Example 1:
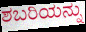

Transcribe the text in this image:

ಶಬರಿಯನ್ನು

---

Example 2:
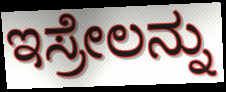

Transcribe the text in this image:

ಇಸ್ರೇಲನ್ನು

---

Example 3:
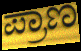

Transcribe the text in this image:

ಪ್ರಾಣ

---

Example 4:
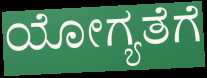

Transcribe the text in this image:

ಯೋಗ್ಯತೆಗೆ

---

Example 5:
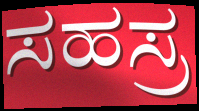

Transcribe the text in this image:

ಸಹಸ್ರ